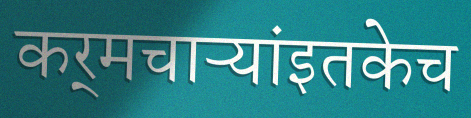
कर्मचाऱ्यांइतकेच